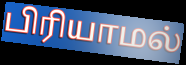
பிரியாமல்